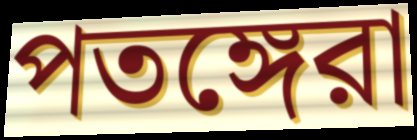
পতঙ্গেরা